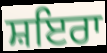
ਸ਼ਇਰਾ